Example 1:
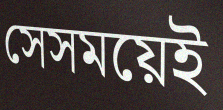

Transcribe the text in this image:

সেসময়েই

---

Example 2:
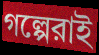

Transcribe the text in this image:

গল্পেরাই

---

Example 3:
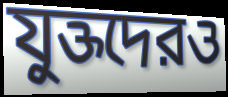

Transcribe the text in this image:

যুক্তদেরও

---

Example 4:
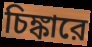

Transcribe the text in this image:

চিঙ্কারে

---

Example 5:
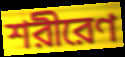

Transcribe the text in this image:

শরীরেণ